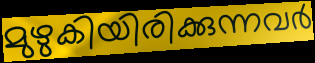
മുഴുകിയിരിക്കുന്നവർ